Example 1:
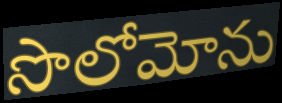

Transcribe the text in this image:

సొలోమోను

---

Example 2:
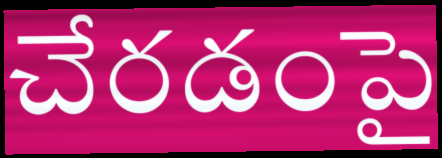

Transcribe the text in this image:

చేరడంపై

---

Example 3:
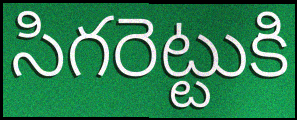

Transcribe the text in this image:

సిగరెట్టుకి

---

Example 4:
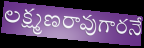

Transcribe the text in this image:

లక్ష్మణరావుగారనే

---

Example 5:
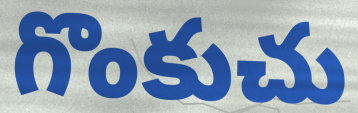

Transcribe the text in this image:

గొంకుచు